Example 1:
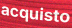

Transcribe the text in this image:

acquisto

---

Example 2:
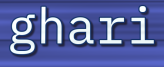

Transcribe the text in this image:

ghari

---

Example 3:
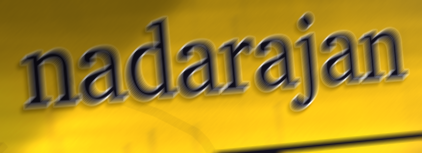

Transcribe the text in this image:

nadarajan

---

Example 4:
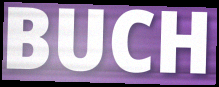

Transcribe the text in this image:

BUCH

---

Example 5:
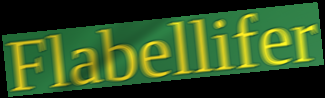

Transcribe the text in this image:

Flabellifer